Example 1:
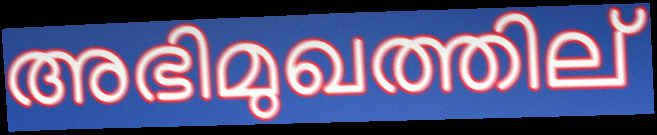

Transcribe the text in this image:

അഭിമുഖത്തില്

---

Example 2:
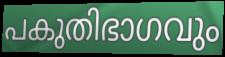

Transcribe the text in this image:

പകുതിഭാഗവും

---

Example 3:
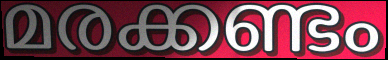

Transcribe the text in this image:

മരക്കണ്ടം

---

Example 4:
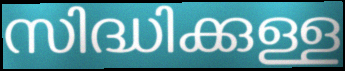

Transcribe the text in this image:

സിദ്ധിക്കുള്ള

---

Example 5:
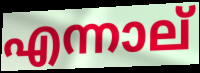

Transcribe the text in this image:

എന്നാല്